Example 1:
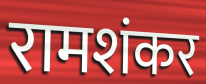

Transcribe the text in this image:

रामशंकर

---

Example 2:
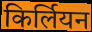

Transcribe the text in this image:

किर्लियन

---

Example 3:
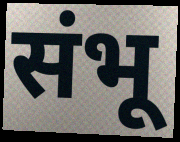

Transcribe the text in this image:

संभू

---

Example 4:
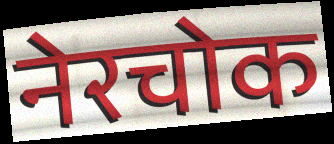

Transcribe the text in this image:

नेरचोक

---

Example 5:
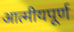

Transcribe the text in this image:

आत्मीयपूर्ण